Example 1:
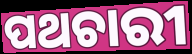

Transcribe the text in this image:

ପଥଚାରୀ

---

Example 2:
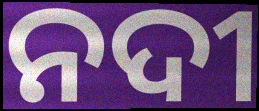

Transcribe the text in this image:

ନଦୀ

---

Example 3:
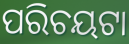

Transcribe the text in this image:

ପରିଚୟଟା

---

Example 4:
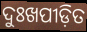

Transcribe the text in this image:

ଦୁଃଖପୀଡ଼ିତ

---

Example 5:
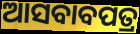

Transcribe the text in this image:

ଆସବାବପତ୍ର